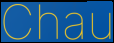
Chau